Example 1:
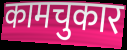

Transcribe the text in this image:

कामचुकार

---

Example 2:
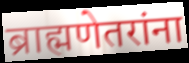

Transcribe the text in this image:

ब्राह्मणेतरांना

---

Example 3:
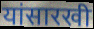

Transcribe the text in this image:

यांसारखी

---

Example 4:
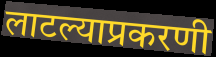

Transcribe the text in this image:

लाटल्याप्रकरणी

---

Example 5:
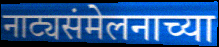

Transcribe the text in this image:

नाट्यसंमेलनाच्या